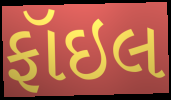
ફૉઇલ